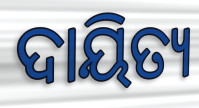
ଦାୟିତ୍ୟ